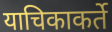
याचिकाकर्ते